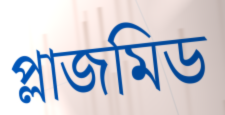
প্লাজমিড